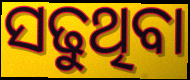
ସଢୁଥିବା